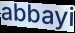
abbayi